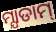
ମ୍ଯାଡାମ୍